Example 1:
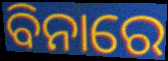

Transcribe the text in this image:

ବିନାରେ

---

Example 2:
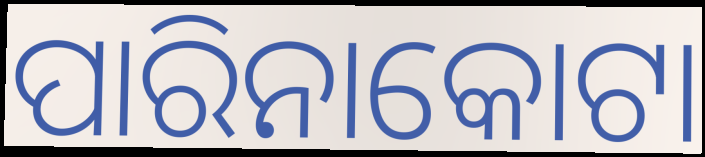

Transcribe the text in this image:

ପାରିନାକୋଟା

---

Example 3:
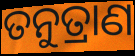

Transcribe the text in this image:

ତନୁତ୍ରାଣ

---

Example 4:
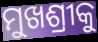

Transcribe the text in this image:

ମୁଖଶ୍ରୀକୁ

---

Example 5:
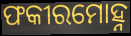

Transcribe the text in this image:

ଫକୀରମୋହ୍ନ